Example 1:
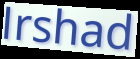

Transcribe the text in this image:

Irshad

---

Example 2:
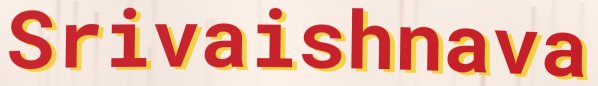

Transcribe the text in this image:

Srivaishnava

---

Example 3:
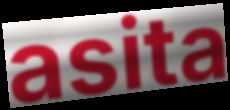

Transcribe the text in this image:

asita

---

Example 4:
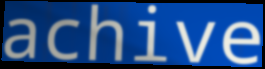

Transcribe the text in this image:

achive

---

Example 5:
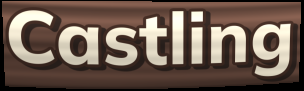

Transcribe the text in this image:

Castling